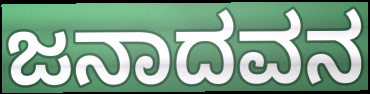
ಜನಾದವನ